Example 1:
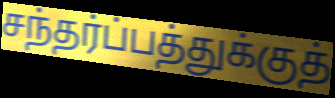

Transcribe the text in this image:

சந்தர்ப்பத்துக்குத்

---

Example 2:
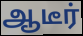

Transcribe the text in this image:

ஆடீர்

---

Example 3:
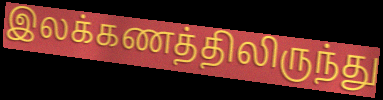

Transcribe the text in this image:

இலக்கணத்திலிருந்து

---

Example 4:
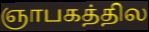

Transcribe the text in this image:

ஞாபகத்தில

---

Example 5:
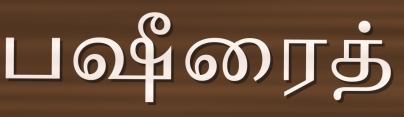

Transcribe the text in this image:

பஷீரைத்